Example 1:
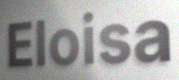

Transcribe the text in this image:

Eloisa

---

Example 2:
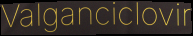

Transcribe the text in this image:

Valganciclovir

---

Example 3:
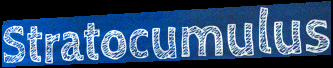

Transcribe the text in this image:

Stratocumulus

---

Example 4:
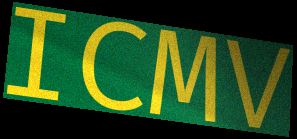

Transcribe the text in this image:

ICMV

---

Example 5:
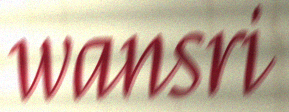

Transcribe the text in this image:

wansri